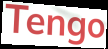
Tengo